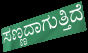
ಸಣ್ಣದಾಗುತ್ತಿದೆ